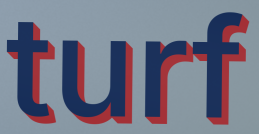
turf